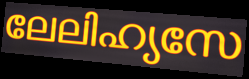
ലേലിഹ്യസേ